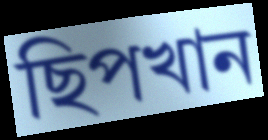
ছিপখান